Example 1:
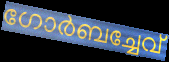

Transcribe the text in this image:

ഗോർബച്ചേവ്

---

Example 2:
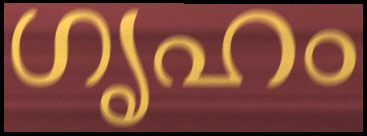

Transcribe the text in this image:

ഗൃഹം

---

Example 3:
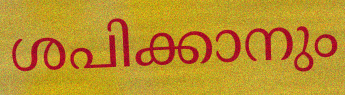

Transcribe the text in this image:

ശപിക്കാനും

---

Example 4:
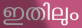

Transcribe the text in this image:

ഇതിലും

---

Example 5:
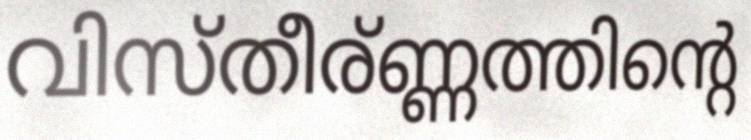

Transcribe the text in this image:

വിസ്തീര്ണ്ണത്തിന്റെ